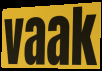
vaak